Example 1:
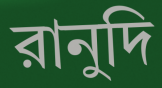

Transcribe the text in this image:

রানুদি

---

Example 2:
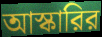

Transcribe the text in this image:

আস্কারির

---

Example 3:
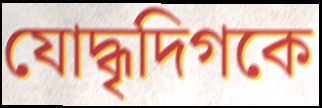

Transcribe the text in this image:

যোদ্ধৃদিগকে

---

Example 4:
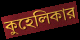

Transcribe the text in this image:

কুহেলিকার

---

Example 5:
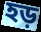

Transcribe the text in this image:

হড়